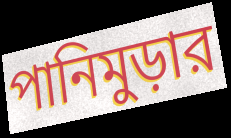
পানিমুড়ার